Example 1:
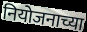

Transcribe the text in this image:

नियोजनाच्या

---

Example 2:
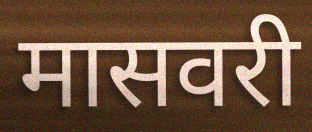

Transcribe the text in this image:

मासवरी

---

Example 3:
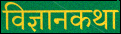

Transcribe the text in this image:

विज्ञानकथा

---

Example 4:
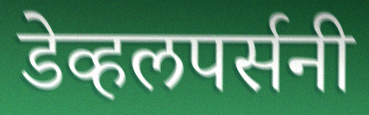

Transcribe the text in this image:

डेव्हलपर्सनी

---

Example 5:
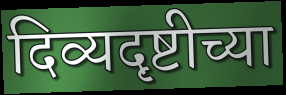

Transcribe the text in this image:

दिव्यदृष्टीच्या